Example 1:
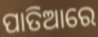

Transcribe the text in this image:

ପାତିଆରେ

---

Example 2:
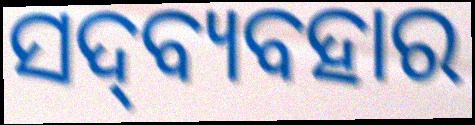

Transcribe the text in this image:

ସଦ୍‍ବ୍ୟବହାର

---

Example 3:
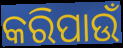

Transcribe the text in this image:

କରିପାଉଁ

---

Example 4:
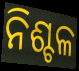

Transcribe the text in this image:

ନିଶ୍ଚଳ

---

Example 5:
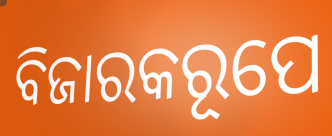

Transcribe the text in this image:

ବିଜାରକରୂପେ